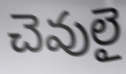
చెవులై